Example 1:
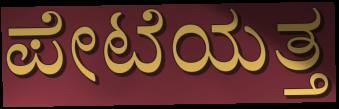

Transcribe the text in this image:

ಪೇಟೆಯತ್ತ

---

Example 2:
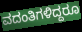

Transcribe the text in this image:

ವದಂತಿಗಳಿದ್ದರೂ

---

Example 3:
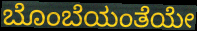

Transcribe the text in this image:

ಬೊಂಬೆಯಂತೆಯೇ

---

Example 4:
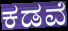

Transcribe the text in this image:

ಕಡವೆ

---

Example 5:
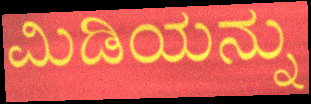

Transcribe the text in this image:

ಮಿಡಿಯನ್ನು